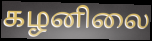
கழனிலை